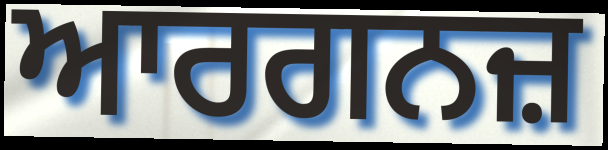
ਆਰਗਨਜ਼